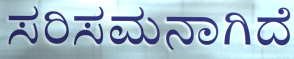
ಸರಿಸಮನಾಗಿದೆ